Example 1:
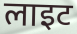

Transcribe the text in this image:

लाइट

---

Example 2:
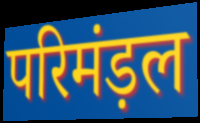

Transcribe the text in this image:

परिमंड़ल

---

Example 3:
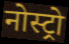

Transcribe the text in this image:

नोस्ट्रो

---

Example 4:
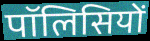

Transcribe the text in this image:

पॉलिसियों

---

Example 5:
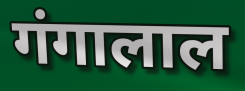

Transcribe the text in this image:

गंगालाल